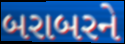
બરાબરને